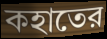
কহাতের